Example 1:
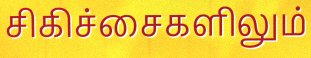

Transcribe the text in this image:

சிகிச்சைகளிலும்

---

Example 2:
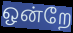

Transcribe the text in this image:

ஒன்றே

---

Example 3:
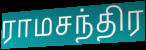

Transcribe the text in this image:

ராமசந்திர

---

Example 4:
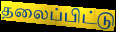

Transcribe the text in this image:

தலைப்பிட்டு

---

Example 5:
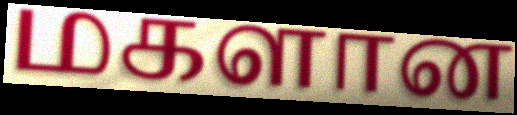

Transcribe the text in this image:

மகளான